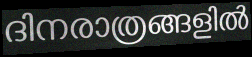
ദിനരാത്രങ്ങളിൽ